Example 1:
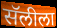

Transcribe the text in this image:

सॅलीला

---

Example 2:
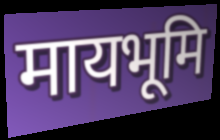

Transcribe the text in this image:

मायभूमि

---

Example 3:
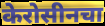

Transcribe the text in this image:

केरोसीनचा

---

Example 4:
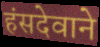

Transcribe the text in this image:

हंसदेवाने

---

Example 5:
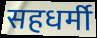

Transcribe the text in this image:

सहधर्मी